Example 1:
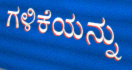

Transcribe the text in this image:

ಗಳಿಕೆಯನ್ನು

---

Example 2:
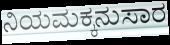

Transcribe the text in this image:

ನಿಯಮಕ್ಕನುಸಾರ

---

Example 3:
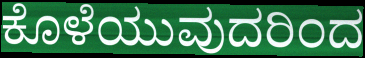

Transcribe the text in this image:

ಕೊಳೆಯುವುದರಿಂದ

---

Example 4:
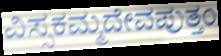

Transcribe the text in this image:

ವಿಸ್ಸಕಮ್ಮದೇವಪುತ್ತಂ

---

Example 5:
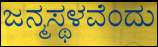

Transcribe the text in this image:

ಜನ್ಮಸ್ಥಳವೆಂದು